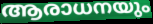
ആരാധനയും